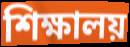
শিক্ষালয়